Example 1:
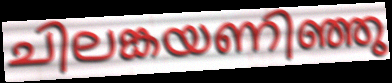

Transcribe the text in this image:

ചിലങ്കയണിഞ്ഞു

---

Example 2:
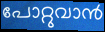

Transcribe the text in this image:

പോറ്റുവാൻ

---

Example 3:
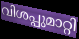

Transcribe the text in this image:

വിശപ്പുമാറ്റി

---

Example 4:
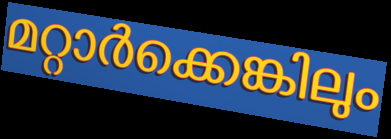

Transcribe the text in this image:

മറ്റാർക്കെങ്കിലും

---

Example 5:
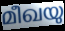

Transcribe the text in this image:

മീഖയു